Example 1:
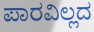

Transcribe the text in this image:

ಪಾರವಿಲ್ಲದ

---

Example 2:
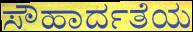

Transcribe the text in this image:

ಸೌಹಾರ್ದತೆಯ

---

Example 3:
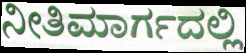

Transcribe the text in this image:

ನೀತಿಮಾರ್ಗದಲ್ಲಿ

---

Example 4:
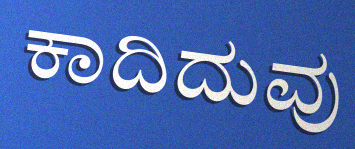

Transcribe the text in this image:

ಕಾದಿದುವು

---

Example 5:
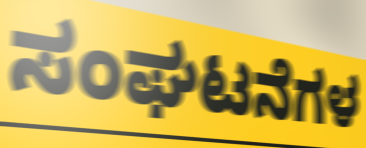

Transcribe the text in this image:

ಸಂಘಟನೆಗಳ